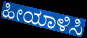
ಹೀಯಾಳಿಸಿ